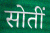
सोतीं